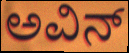
ಅವಿನ್